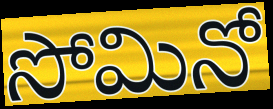
సోమినో